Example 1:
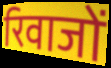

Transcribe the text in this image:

रिवाजों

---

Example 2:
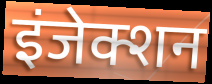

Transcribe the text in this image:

इंजेक्शन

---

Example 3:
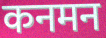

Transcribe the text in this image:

कनमन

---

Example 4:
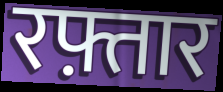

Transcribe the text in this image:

रफ़्तार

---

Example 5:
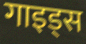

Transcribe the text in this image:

गाइड्स